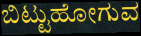
ಬಿಟ್ಟುಹೋಗುವ